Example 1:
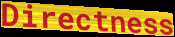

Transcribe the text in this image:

Directness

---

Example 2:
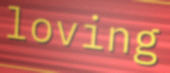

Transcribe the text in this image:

loving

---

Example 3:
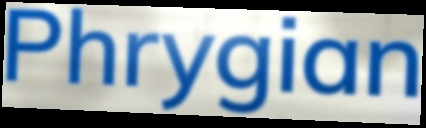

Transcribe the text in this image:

Phrygian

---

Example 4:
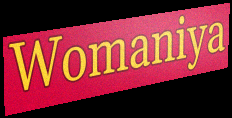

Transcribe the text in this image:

Womaniya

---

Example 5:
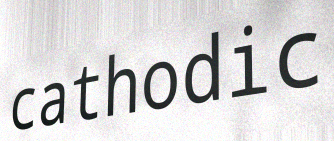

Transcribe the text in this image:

cathodic